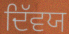
ਦਿੱਵਯ